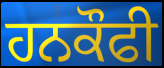
ਹਨਕੌਫੀ